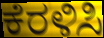
ಕೆರಳಿಸಿ